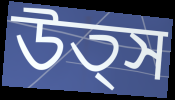
উত্স